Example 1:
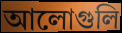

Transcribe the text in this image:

আলোগুলি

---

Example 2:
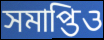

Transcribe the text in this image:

সমাপ্তিও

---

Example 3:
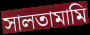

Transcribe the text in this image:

সালতামামি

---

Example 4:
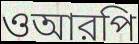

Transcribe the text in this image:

ওআরপি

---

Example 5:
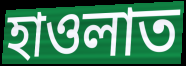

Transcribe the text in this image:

হাওলাত